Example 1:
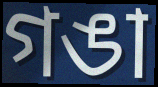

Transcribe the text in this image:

গঙা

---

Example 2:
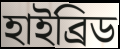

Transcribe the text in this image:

হাইব্ৰিড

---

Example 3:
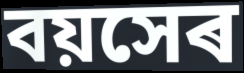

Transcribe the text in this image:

বয়সেৰ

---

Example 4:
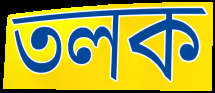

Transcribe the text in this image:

তলক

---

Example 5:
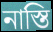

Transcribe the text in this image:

নাস্তি